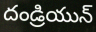
దండ్రియున్